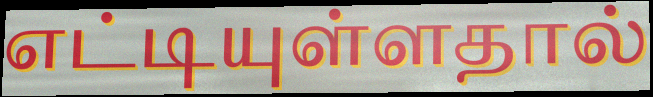
எட்டியுள்ளதால்